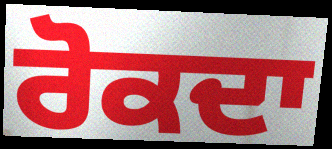
ਰੋਕਦਾ